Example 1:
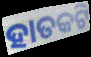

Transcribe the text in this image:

ହାତକଟି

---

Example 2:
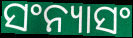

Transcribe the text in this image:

ସଂନ୍ୟାସଂ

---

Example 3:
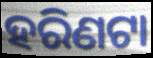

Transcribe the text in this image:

ହରିଣଟା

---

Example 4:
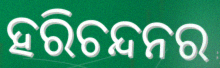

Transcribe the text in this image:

ହରିଚନ୍ଦନର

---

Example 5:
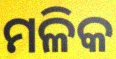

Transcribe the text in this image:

ମଳିକ